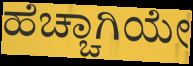
ಹೆಚ್ಚಾಗಿಯೇ